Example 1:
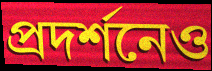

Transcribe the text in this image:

প্রদর্শনেও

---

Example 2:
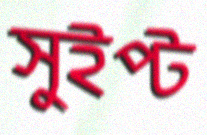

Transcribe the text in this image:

সুইপ্ট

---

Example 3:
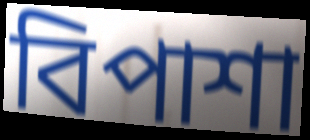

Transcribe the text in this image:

বিপাশা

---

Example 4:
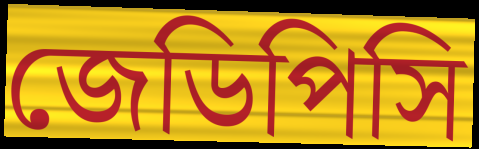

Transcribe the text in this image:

জেডিপিসি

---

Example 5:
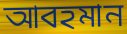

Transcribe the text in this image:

আবহমান